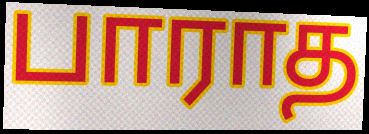
பாராத